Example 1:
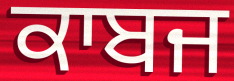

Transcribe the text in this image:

ਕਾਬਜ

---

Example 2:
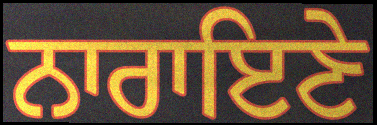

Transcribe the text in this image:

ਨਾਰਾਇਣੇ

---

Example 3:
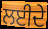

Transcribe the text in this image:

ਲਈਦੇ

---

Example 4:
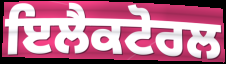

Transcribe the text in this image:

ਇਲੈਕਟੋਰਲ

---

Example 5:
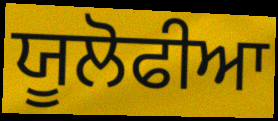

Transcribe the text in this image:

ਯੂਲੋਫੀਆ